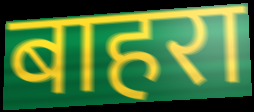
बाहरा